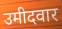
उमीदवार